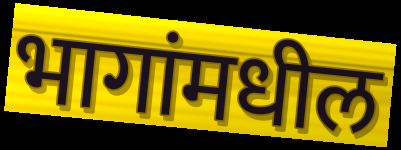
भागांमधील